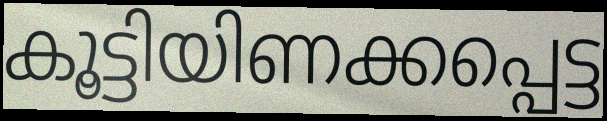
കൂട്ടിയിണക്കപ്പെട്ട